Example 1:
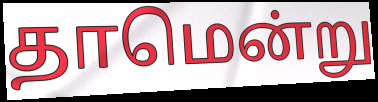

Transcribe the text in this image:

தாமென்று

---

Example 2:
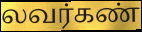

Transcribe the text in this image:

லவர்கண்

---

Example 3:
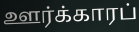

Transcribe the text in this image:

ஊர்க்காரப்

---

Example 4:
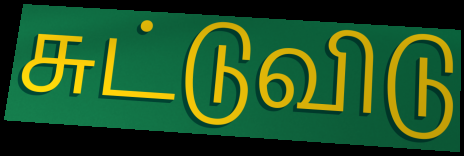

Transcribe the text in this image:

சுட்டுவிடு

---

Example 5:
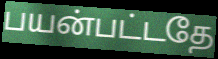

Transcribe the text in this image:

பயன்பட்டதே